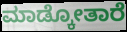
ಮಾಡ್ಕೋತಾರೆ